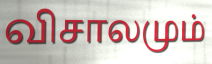
விசாலமும்